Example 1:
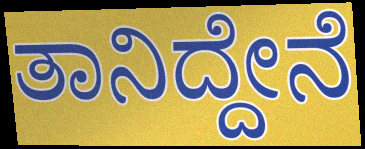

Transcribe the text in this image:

ತಾನಿದ್ದೇನೆ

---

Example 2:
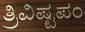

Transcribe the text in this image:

ತ್ರಿವಿಷ್ಟಪಂ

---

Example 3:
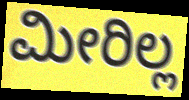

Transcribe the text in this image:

ಮೀರಿಲ್ಲ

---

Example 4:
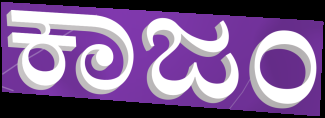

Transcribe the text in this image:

ಕಾಜಂ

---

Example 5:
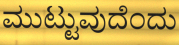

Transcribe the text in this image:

ಮುಟ್ಟುವುದೆಂದು